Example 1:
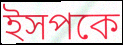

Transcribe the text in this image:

ইসপকে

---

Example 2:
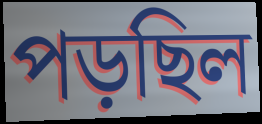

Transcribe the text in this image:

পড়ছিল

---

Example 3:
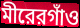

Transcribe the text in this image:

মীরেরগাঁও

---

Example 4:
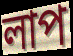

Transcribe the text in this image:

লাপ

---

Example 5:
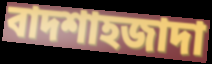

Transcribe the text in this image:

বাদশাহজাদা